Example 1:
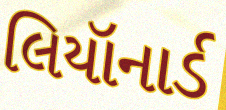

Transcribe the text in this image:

લિયૉનાર્ડ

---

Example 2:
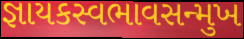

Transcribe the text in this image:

જ્ઞાયકસ્વભાવસન્મુખ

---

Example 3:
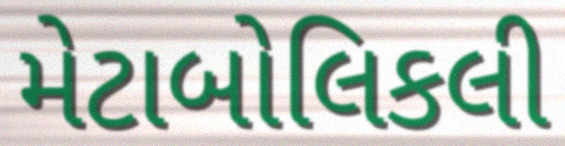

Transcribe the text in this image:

મેટાબોલિકલી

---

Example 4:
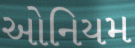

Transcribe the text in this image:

ઓનિયમ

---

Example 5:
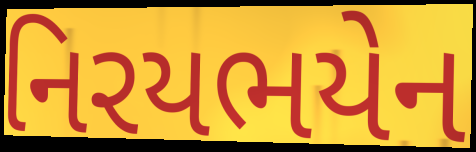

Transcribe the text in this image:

નિરયભયેન